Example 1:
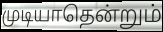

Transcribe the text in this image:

முடியாதென்றும்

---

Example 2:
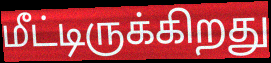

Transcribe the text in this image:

மீட்டிருக்கிறது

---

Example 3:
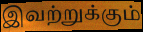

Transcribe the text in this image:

இவற்றுக்கும்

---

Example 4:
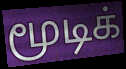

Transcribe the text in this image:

மூடிக்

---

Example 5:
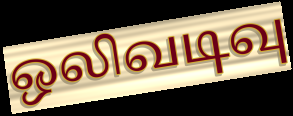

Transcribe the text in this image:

ஒலிவடிவு